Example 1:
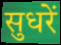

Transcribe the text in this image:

सुधरें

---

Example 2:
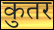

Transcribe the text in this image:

कुतर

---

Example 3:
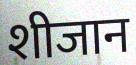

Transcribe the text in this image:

शीजान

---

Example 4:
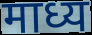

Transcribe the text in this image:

माध्य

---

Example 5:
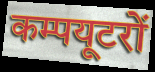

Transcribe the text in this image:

कम्पयूटरों